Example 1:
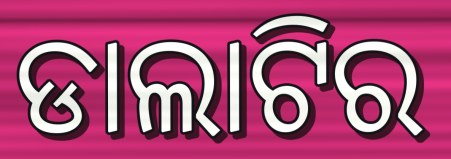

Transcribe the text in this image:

ଡାଲାଟିର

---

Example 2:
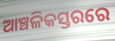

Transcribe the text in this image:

ଆଞ୍ଚଳିକସ୍ତରରେ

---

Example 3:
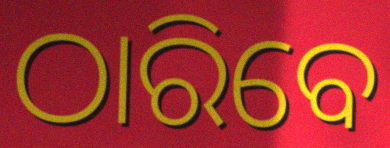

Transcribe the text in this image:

ଠାରିବେ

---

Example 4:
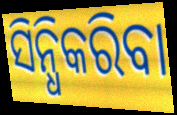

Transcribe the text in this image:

ସିନ୍ଧିକରିବା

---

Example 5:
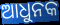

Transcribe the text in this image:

ଆଧୁନକ